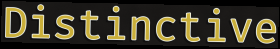
Distinctive